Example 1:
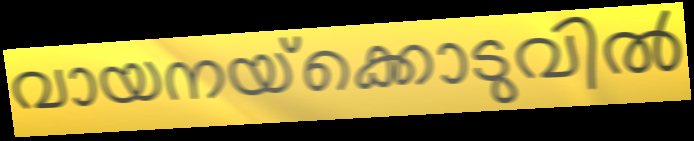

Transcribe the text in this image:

വായനയ്‌ക്കൊടുവിൽ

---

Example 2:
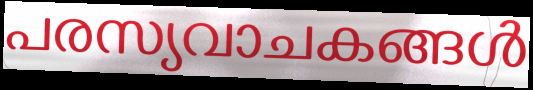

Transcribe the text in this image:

പരസ്യവാചകങ്ങൾ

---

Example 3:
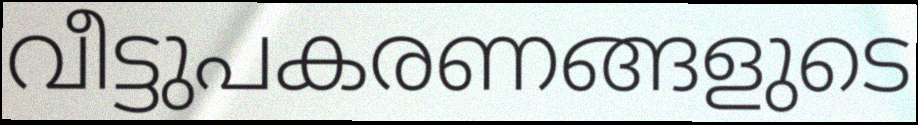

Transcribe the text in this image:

വീട്ടുപകരണങ്ങളുടെ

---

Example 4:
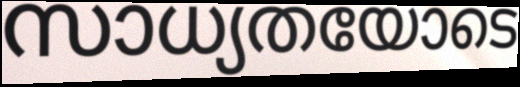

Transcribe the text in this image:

സാധ്യതയോടെ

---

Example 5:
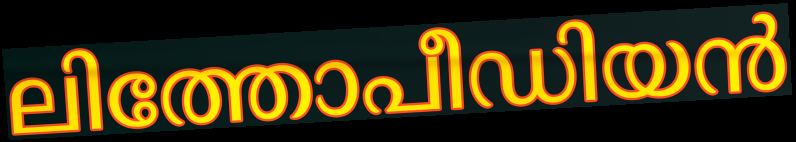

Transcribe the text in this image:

ലിത്തോപീഡിയൻ